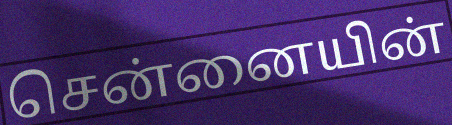
சென்னையின்